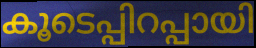
കൂടെപ്പിറപ്പായി